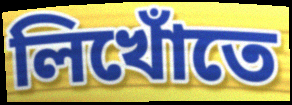
লিখোঁতে